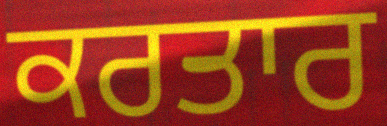
ਕਰਤਾਰ